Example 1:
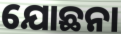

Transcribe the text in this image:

ଯୋଛନା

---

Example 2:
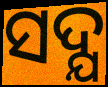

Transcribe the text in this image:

ସଦ୍ଯ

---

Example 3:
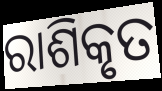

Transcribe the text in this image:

ରାଶିକୃତ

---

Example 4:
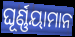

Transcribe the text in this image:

ଘୂର୍ଣ୍ଣୟାମାନ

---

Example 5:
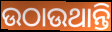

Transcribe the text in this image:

ଉଠାଉଥାନ୍ତି